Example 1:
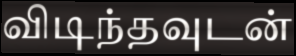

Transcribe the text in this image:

விடிந்தவுடன்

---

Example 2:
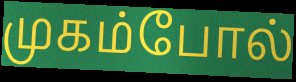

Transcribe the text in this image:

முகம்போல்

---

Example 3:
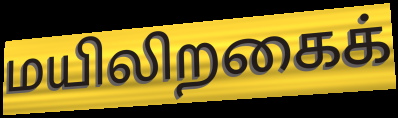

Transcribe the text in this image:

மயிலிறகைக்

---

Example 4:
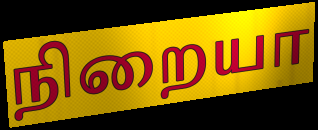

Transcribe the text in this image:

நிறையா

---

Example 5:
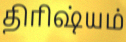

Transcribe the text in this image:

திரிஷ்யம்